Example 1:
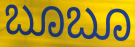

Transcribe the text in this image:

ಬೂಬೂ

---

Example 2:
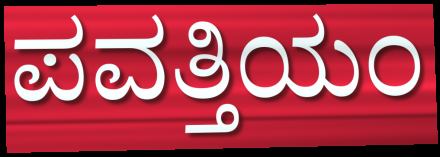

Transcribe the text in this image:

ಪವತ್ತಿಯಂ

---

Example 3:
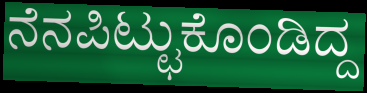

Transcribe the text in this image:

ನೆನಪಿಟ್ಟುಕೊಂಡಿದ್ದ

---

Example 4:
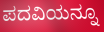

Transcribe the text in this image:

ಪದವಿಯನ್ನೂ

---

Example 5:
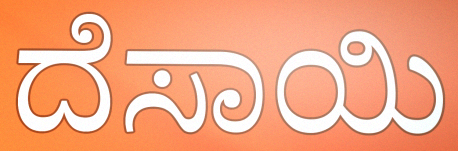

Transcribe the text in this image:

ದೆಸಾಯಿ